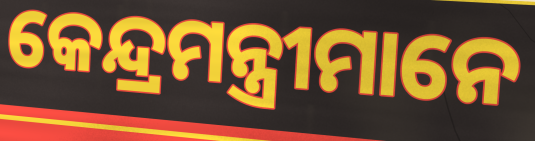
କେନ୍ଦ୍ରମନ୍ତ୍ରୀମାନେ